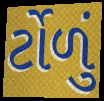
ર્ટોળું